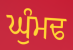
ਘੁੰਮਢ